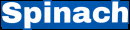
Spinach